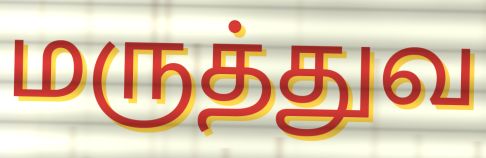
மருத்துவ